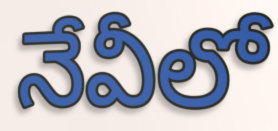
నేవీలో